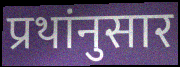
प्रथांनुसार